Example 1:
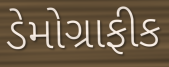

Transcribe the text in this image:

ડેમોગ્રાફીક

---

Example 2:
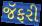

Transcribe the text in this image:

જૅફરી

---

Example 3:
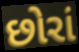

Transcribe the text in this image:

છોરાં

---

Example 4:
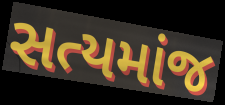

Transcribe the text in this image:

સત્યમાંજ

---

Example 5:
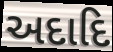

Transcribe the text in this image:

અદાદિ